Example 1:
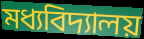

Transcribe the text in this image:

মধ্যবিদ্যালয়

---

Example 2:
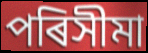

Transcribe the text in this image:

পৰিসীমা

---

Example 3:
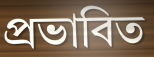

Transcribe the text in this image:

প্ৰভাবিত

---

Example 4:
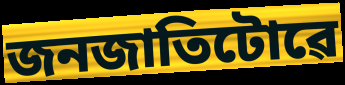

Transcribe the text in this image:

জনজাতিটোৱে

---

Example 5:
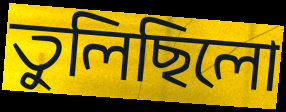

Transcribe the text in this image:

তুলিছিলো